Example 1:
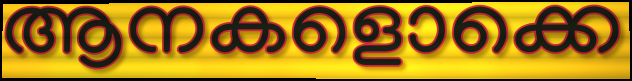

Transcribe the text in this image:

ആനകളൊക്കെ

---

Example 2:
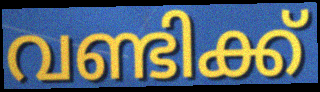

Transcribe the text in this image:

വണ്ടിക്ക്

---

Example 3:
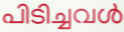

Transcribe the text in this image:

പിടിച്ചവൾ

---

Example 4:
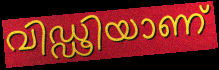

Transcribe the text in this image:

വിഡ്ഢിയാണ്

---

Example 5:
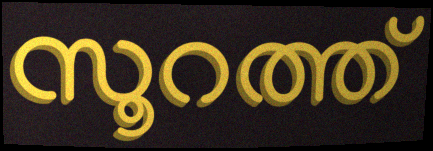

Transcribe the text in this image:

സൂറത്ത്